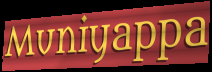
Muniyappa